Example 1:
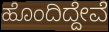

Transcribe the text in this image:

ಹೊಂದಿದ್ದೇವೆ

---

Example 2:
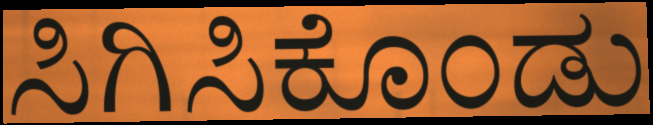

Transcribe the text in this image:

ಸಿಗಿಸಿಕೊಂಡು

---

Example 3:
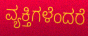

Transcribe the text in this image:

ವ್ಯಕ್ತಿಗಳೆಂದರೆ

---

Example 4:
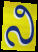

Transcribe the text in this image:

ನಿ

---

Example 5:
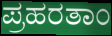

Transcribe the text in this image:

ಪ್ರಹರತಾಂ